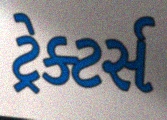
ટ્રેક્ટર્સ